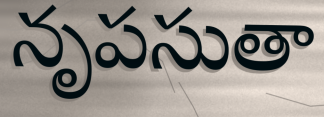
నృపసుతా